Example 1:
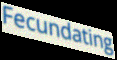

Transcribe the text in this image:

Fecundating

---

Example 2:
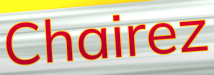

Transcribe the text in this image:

Chairez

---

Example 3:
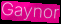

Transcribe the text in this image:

Gaynor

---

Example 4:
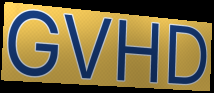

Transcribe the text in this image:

GVHD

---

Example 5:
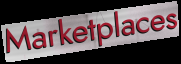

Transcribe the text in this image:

Marketplaces